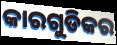
କାରଗୁଡିକର